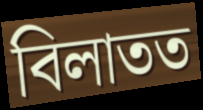
বিলাতত